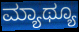
ಮ್ಯಾಥ್ಯೂ